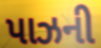
પાઝની